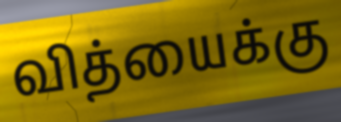
வித்யைக்கு